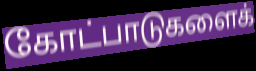
கோட்பாடுகளைக்